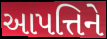
આપત્તિને